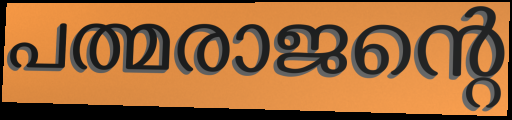
പത്മരാജന്റെ